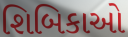
શિબિકાઓ